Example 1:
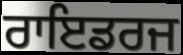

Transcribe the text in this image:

ਰਾਇਡਰਜ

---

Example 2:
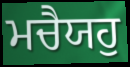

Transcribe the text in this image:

ਮਚੈਯਹੁ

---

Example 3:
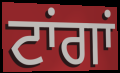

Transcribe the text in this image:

ਟਾਂਗਾਂ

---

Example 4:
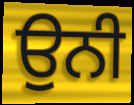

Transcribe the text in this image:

ਉਨੀ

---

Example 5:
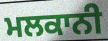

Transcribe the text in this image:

ਮਲਕਾਨੀ